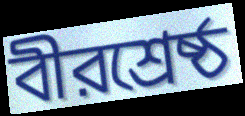
বীরশ্রেষ্ঠ